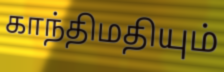
காந்திமதியும்